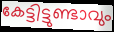
കേട്ടിട്ടുണ്ടാവും